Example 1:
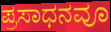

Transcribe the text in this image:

ಪ್ರಸಾಧನವೂ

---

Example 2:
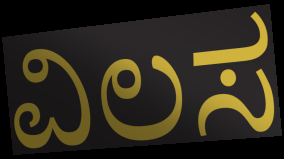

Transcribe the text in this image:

ವಿಲಸ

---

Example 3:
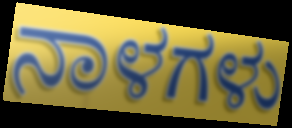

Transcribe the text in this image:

ನಾಳಗಳು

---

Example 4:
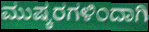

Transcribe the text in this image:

ಮುಷ್ಕರಗಳಿಂದಾಗಿ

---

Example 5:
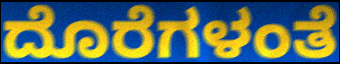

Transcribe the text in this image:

ದೊರೆಗಳಂತೆ